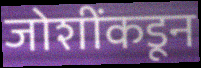
जोशींकडून